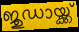
ജുഡായ്ക്ക്